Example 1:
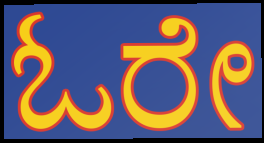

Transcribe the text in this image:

ಓರೇ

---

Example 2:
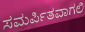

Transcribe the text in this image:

ಸಮರ್ಪಿತವಾಗಲಿ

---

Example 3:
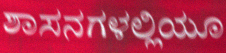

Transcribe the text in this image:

ಶಾಸನಗಳಲ್ಲಿಯೂ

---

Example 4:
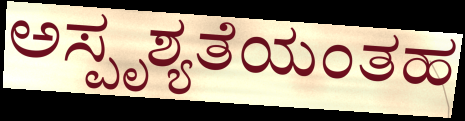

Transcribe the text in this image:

ಅಸ್ಪೃಶ್ಯತೆಯಂತಹ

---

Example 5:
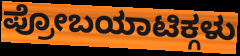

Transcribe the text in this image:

ಪ್ರೋಬಯಾಟಿಕ್ಗಳು